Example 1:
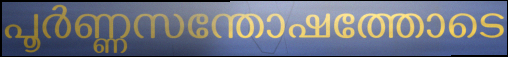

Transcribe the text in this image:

പൂർണ്ണസന്തോഷത്തോടെ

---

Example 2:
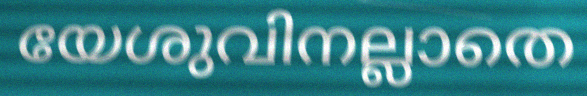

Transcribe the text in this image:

യേശുവിനല്ലാതെ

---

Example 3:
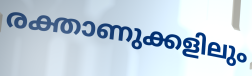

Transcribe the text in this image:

രക്താണുക്കളിലും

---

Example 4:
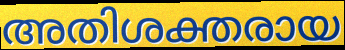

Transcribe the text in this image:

അതിശക്തരായ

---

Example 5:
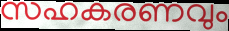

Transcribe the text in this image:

സഹകരണവും